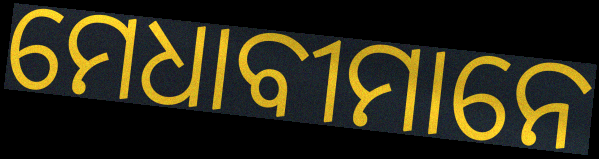
ମେଧାବୀମାନେ